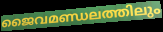
ജൈവമണ്ഡലത്തിലും